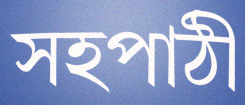
সহপাঠী